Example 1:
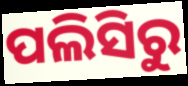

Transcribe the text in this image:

ପଲିସିରୁ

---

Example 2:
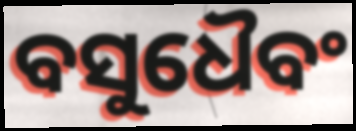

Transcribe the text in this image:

ବସୁଧୈବଂ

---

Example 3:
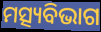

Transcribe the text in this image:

ମତ୍ସ୍ୟବିଭାଗ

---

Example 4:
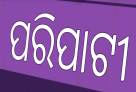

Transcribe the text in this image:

ପରିପାଟୀ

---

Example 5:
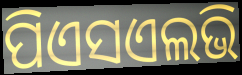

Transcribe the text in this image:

ପିଏସଏଲଭି